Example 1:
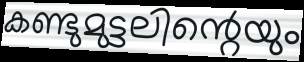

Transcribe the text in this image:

കണ്ടുമുട്ടലിന്റെയും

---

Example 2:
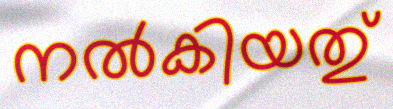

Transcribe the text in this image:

നൽകിയതു്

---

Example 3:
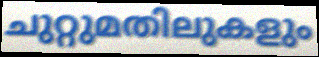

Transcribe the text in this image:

ചുറ്റുമതിലുകളും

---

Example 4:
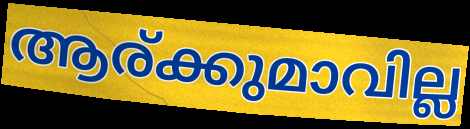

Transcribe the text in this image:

ആര്ക്കുമാവില്ല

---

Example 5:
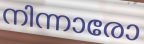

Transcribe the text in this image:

നിന്നാരോ